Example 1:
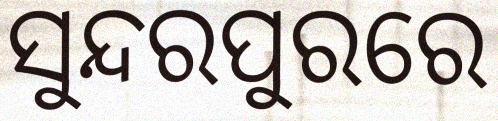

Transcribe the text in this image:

ସୁନ୍ଦରପୁରରେ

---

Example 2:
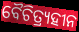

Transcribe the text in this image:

ବୈଚିତ୍ର୍ୟହୀନ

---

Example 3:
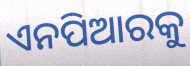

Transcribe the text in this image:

ଏନପିଆରକୁ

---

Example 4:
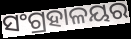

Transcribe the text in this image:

ସଂଗ୍ରହାଳୟର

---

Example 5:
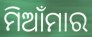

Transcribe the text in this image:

ମିଆଁମାର